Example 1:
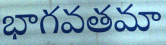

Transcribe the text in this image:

భాగవతమా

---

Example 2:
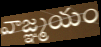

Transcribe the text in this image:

వాజ్ఞ్మయం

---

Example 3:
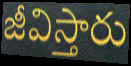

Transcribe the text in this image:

జీవిస్తారు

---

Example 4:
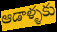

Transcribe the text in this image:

ఆడాళ్ళకు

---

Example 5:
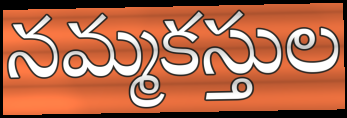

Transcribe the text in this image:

నమ్మకస్తుల